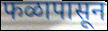
फळापासून